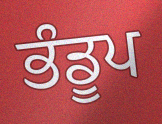
ਭੰਡੂਪ